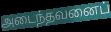
அடைந்தவனைப்